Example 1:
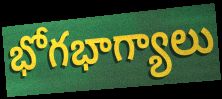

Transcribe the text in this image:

భోగభాగ్యాలు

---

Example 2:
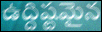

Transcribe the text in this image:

ఉద్దిష్టమైన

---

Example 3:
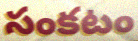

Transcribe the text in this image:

సంకటం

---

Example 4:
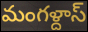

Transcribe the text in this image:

మంగళ్దాస్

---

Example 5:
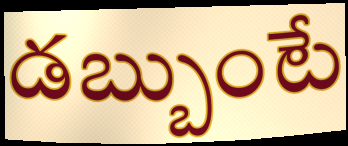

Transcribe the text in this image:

డబ్బుంటే